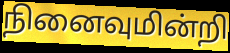
நினைவுமின்றி